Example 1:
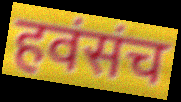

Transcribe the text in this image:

हवंसंच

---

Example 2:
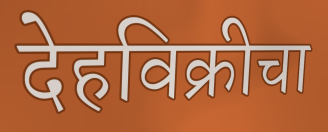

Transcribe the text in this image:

देहविक्रीचा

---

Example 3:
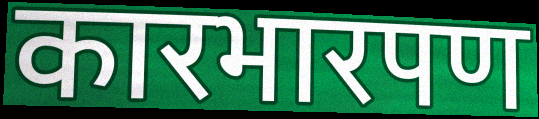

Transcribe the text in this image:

कारभारपण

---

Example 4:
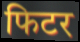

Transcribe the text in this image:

फिटर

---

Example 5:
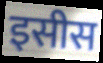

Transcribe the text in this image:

इसीस